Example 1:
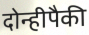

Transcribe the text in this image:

दोन्हीपैकी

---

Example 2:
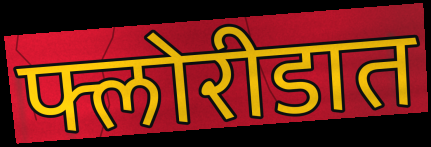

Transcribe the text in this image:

फ्लोरीडात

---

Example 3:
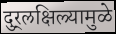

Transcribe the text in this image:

दुर्लक्षिल्यामुळे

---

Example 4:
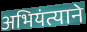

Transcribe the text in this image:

अभियंत्याने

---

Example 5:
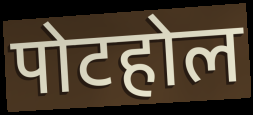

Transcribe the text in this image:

पोटहोल